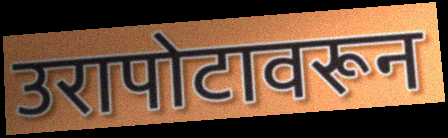
उरापोटावरून